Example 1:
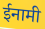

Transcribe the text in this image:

ईनामी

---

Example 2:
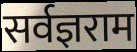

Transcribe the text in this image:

सर्वज्ञराम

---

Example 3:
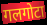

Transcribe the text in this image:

गलगोटा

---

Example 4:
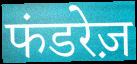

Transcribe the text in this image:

फंडरेज़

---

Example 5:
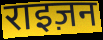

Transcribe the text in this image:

राइज़न